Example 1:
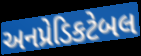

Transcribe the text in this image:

અનપ્રેડિકટેબલ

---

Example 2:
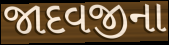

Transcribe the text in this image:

જાદવજીના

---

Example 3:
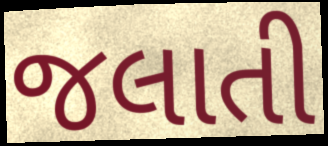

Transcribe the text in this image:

જલાતી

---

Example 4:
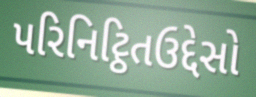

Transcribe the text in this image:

પરિનિટ્ઠિતઉદ્દેસો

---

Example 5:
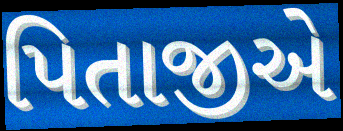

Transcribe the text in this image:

પિતાજીએ